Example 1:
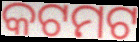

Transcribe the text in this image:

କଟମଟ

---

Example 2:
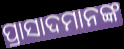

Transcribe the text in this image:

ପ୍ରାସାଦମାନଙ୍କ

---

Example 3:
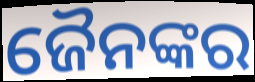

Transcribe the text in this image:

ଜୈନଙ୍କର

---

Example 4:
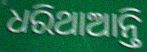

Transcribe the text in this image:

ଧରିଥାଆନ୍ତି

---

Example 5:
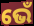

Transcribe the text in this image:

ଭେଁ